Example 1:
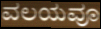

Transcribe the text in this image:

ವಲಯವೂ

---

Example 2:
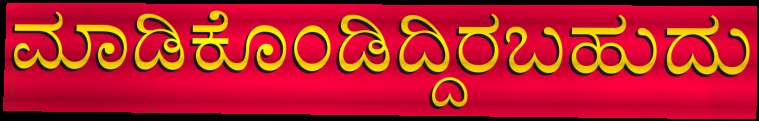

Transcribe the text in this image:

ಮಾಡಿಕೊಂಡಿದ್ದಿರಬಹುದು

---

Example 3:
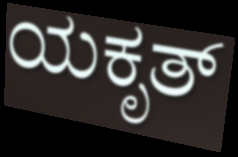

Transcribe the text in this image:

ಯಕೃತ್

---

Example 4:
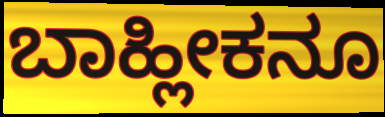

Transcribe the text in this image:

ಬಾಹ್ಲೀಕನೂ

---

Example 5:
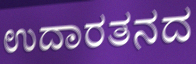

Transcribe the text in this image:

ಉದಾರತನದ